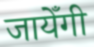
जायेँगी